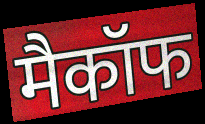
मैकॉफ